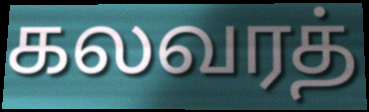
கலவரத்